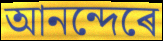
আনন্দেৰে